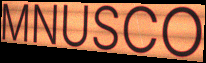
MNUSCO